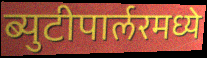
ब्युटीपार्लरमध्ये